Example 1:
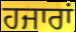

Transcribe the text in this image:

ਹਜਾਰਾਂ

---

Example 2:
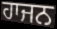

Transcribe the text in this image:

ਹਾਜਨ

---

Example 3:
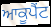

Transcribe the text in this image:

ਆਕੂਪੈਂਟ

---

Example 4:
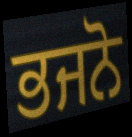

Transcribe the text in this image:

ਭਜਨੋ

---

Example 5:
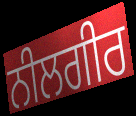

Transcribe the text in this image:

ਨੀਲਗੀਰ